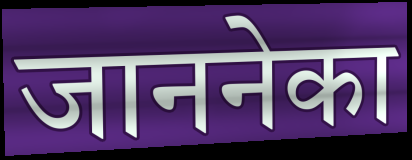
जाननेका